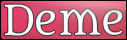
Deme